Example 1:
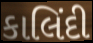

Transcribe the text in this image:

કાલિંદી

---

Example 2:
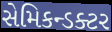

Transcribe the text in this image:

સેમિકન્ડક્ટર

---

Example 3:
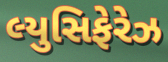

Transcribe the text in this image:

લ્યુસિફેરેઝ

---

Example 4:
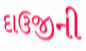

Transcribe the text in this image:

દાઉજીની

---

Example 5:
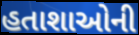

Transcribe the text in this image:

હતાશાઓની